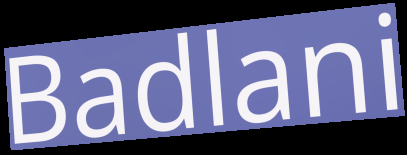
Badlani